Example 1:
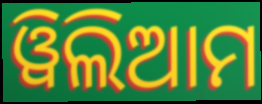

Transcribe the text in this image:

ୱିଲିଆମ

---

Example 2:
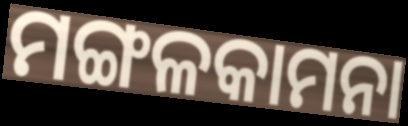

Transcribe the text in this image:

ମଙ୍ଗଳକାମନା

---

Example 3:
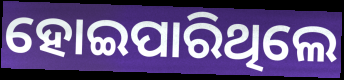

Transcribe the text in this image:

ହୋଇପାରିଥିଲେ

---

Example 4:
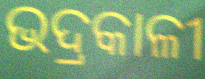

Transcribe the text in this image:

ଭଦ୍ରକାଳୀ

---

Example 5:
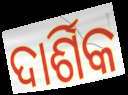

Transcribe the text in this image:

ଦାର୍ଶିକ